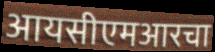
आयसीएमआरचा